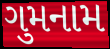
ગુમનામ